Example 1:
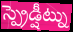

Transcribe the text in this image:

స్ప్రెడ్షీట్ను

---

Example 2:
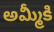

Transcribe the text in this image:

అమ్మీకి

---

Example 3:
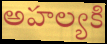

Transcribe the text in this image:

అహల్యకి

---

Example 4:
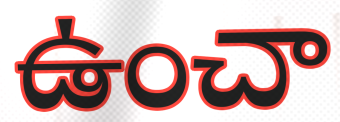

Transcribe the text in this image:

ఉంచా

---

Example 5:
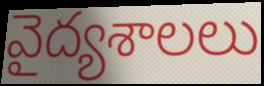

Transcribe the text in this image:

వైద్యశాలలు